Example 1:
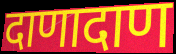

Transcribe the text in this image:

दाणादाण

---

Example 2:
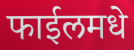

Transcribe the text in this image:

फाईलमधे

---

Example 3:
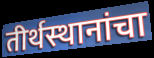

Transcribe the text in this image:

तीर्थस्थानांचा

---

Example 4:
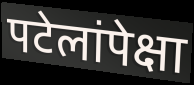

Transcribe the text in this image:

पटेलांपेक्षा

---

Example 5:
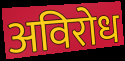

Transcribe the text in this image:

अविरोध